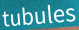
tubules